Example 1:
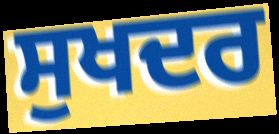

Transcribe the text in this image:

ਸੁਖਦਰ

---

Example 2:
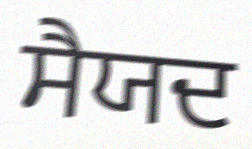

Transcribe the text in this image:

ਸੈਯਦ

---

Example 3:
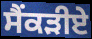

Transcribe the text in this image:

ਸੈਂਕੜੀਏ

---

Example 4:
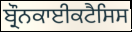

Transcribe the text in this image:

ਬ੍ਰੌਨਕਾਈਕਟੈਸਿਸ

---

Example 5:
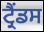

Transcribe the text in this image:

ਟ੍ਰੈਂਡਸ